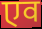
एव